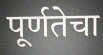
पूर्णतेचा